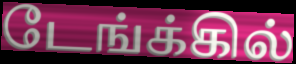
டேங்க்கில்